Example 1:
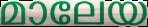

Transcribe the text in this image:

മാലേയ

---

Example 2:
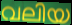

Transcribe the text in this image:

വലിയ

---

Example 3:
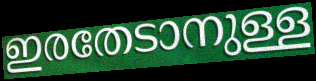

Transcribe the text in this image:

ഇരതേടാനുള്ള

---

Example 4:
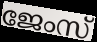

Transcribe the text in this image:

ജേംസ്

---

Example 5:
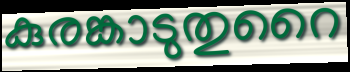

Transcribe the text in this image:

കുരങ്കാടുതുറൈ